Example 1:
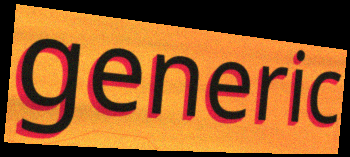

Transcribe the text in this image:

generic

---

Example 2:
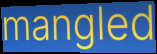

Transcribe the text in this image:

mangled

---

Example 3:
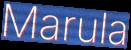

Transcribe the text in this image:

Marula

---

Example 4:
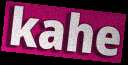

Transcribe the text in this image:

kahe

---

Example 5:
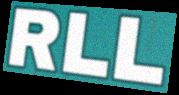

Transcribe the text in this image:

RLL